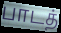
பாடத்